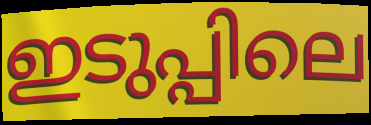
ഇടുപ്പിലെ